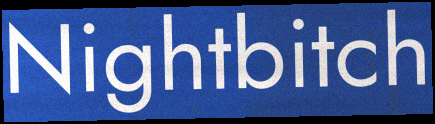
Nightbitch